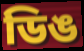
ডিঙ